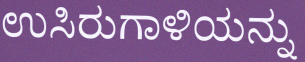
ಉಸಿರುಗಾಳಿಯನ್ನು